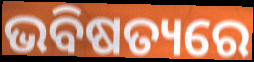
ଭବିଷତ୍ୟରେ